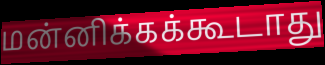
மன்னிக்கக்கூடாது